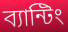
ব্যান্টিং